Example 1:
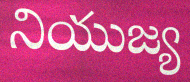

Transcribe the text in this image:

నియుజ్య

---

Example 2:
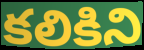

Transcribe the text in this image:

కలికిని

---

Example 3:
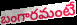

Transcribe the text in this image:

బంగారమంటే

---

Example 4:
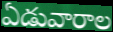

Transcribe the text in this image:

ఏడువారాల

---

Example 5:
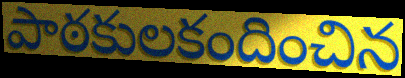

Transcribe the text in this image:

పాఠకులకందించిన